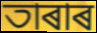
তাৰাৰ